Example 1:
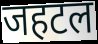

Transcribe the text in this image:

जहटल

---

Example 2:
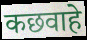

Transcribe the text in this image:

कछवाहे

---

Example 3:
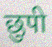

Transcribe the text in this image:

छुपी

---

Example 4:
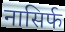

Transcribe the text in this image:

नासिर्फ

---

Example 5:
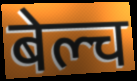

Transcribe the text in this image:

बेल्च